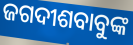
ଜଗଦୀଶବାବୁଙ୍କ